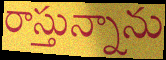
రాస్తున్నాను